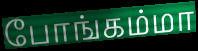
போங்கம்மா